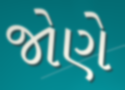
જોણે